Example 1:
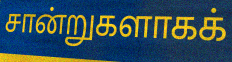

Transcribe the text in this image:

சான்றுகளாகக்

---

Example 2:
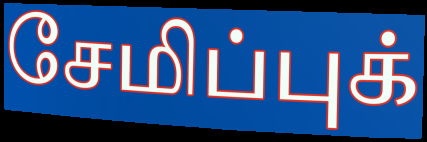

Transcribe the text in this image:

சேமிப்புக்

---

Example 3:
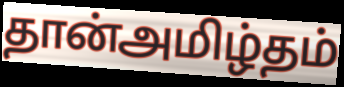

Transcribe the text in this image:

தான்அமிழ்தம்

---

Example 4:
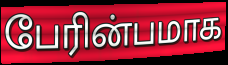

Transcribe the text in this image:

பேரின்பமாக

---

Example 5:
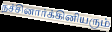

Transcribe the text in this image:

நச்சினார்க்கினியரும்